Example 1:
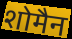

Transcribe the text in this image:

शोमैन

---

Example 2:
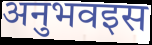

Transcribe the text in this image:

अनुभवइस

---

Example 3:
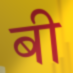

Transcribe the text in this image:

बी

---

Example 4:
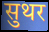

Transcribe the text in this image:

सुथर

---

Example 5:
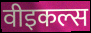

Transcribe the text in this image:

वीइकल्स